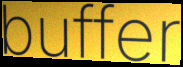
buffer